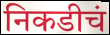
निकडीचं